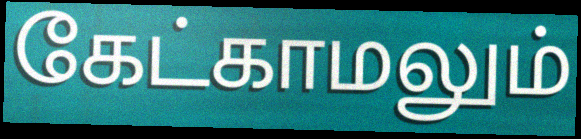
கேட்காமலும்